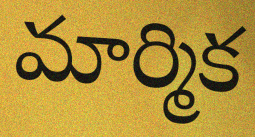
మార్మిక